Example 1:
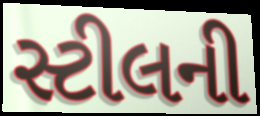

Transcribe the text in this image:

સ્ટીલની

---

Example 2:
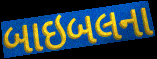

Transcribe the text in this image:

બાઇબલના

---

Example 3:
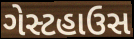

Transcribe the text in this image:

ગેસ્ટહાઉસ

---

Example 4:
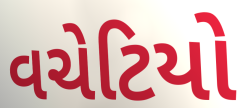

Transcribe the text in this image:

વચેટિયો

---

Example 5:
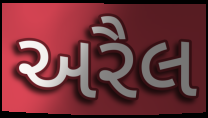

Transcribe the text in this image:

અરૈલ